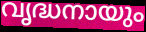
വൃദ്ധനായും